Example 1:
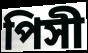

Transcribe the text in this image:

পিসী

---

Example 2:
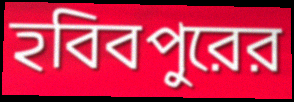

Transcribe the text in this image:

হবিবপুরের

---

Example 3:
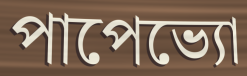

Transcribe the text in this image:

পাপেভ্যো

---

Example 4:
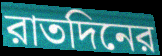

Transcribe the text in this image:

রাতদিনের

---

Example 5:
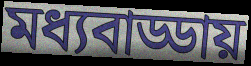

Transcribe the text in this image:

মধ্যবাড্ডায়